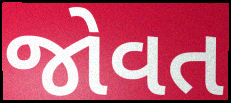
જોવત